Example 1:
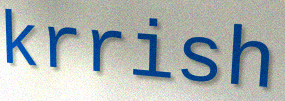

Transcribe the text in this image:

krrish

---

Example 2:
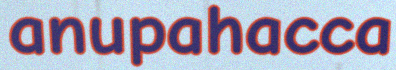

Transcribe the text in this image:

anupahacca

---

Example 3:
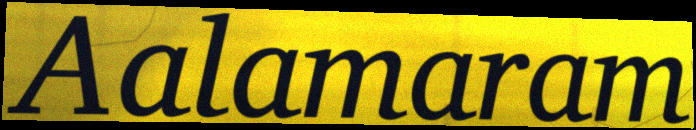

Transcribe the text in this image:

Aalamaram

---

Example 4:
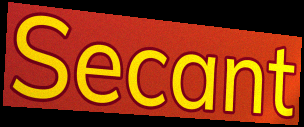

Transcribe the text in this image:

Secant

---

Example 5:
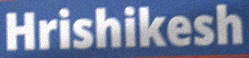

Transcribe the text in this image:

Hrishikesh